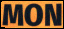
MON